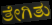
ತೇಗಿತು